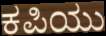
ಕಪಿಯು